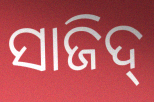
ସାଜିଦ୍